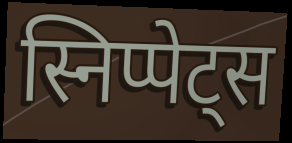
स्निप्पेट्स